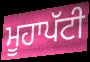
ਮੂਹਾਪੱਟੀ